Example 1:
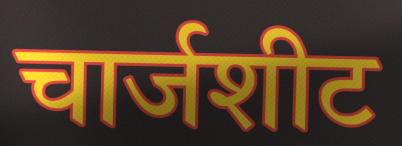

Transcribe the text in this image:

चार्जशीट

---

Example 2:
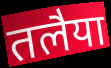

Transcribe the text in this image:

तलैया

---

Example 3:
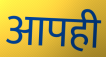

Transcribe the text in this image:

आपही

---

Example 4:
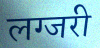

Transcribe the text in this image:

लग्जरी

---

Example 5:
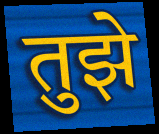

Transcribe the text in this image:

तुझे